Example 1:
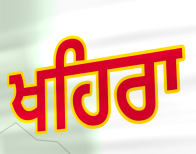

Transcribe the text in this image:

ਖਹਿਰਾ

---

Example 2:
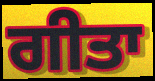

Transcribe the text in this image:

ਗੀਤਾ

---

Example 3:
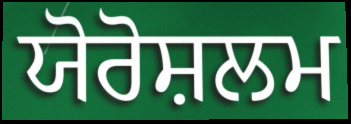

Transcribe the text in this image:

ਯੋਰੋਸ਼ਲਮ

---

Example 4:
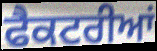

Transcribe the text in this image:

ਫੈਕਟਰੀਆਂ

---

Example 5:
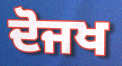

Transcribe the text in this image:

ਦੋਜਖ